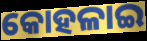
କୋହଳାଇ